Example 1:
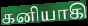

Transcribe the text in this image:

கனியாகி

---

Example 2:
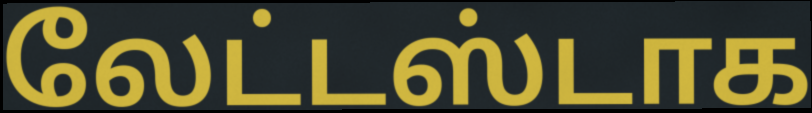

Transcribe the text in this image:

லேட்டஸ்டாக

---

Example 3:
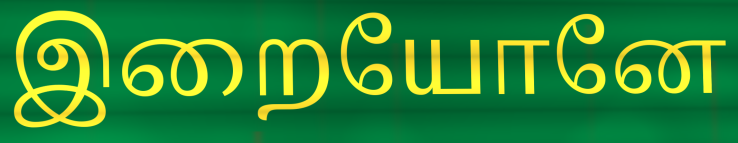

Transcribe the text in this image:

இறையோனே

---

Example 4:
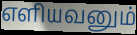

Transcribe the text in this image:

எளியவனும்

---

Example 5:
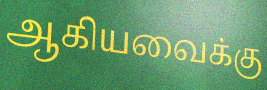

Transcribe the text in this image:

ஆகியவைக்கு